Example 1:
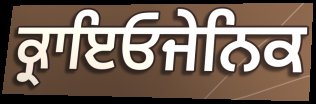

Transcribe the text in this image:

ਕ੍ਰਾਇਓਜੇਨਿਕ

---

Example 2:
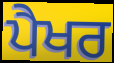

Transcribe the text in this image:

ਪੈਖਰ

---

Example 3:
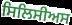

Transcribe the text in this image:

ਸਿਲਿਸੀਅਸ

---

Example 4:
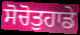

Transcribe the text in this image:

ਸੋਚੋਤੁਹਾਡੇ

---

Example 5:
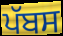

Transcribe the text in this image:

ਪੱਬਸ